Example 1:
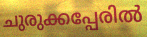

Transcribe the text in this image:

ചുരുക്കപ്പേരിൽ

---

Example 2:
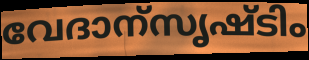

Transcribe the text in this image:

വേദാന്സൃഷ്ടിം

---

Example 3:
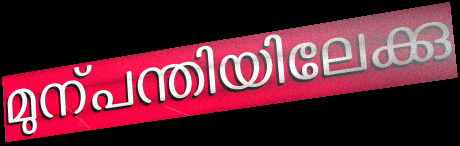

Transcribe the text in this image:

മുന്പന്തിയിലേക്കു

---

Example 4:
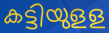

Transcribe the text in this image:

കട്ടിയുളള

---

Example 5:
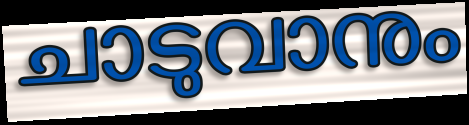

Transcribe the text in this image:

ചാടുവാനും